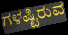
ಗಳಷ್ಟಿರುವ